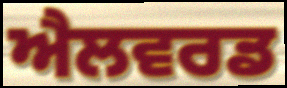
ਐਲਵਰਡ